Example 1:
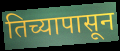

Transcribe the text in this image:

तिच्यापासून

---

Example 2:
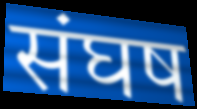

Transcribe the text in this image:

संघष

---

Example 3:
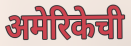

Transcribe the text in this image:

अमेरिकेची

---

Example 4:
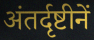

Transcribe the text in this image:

अंतर्दृष्टीनें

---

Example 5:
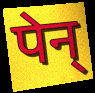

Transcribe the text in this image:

पेन्